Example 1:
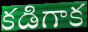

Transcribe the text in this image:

కడిగాక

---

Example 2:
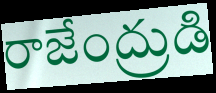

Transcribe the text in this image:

రాజేంద్రుడి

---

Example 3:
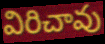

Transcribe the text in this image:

విరిచావు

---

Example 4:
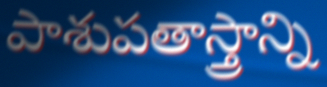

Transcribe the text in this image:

పాశుపతాస్త్రాన్ని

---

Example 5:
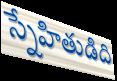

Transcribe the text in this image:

స్నేహితుడిది